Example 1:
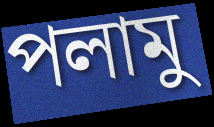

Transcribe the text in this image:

পলামু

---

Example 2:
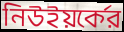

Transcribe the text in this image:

নিউইয়র্কের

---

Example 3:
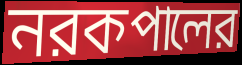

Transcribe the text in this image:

নরকপালের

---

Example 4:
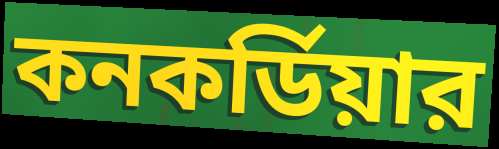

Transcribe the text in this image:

কনকর্ডিয়ার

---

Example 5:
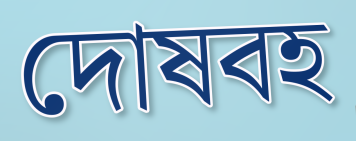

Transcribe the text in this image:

দোষবহ